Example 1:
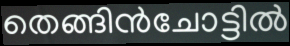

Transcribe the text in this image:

തെങ്ങിൻചോട്ടിൽ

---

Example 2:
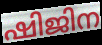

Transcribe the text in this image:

ഷിജിന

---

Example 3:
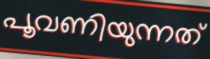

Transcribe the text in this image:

പൂവണിയുന്നത്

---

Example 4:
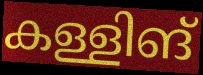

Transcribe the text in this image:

കള്ളിങ്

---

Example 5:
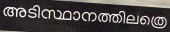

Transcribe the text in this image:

അടിസ്ഥാനത്തിലത്രെ